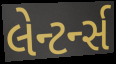
લેન્ટર્ન્સ